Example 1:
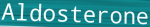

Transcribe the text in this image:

Aldosterone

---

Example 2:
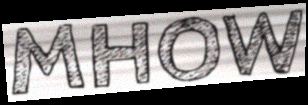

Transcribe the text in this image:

MHOW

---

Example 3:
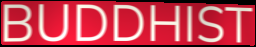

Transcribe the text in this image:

BUDDHIST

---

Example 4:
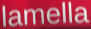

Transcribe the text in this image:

lamella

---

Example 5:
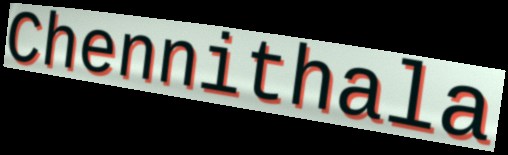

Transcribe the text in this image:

Chennithala